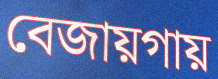
বেজায়গায়